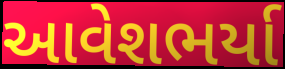
આવેશભર્યા